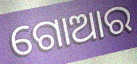
ଗୋଆର